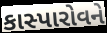
કાસ્પારોવને